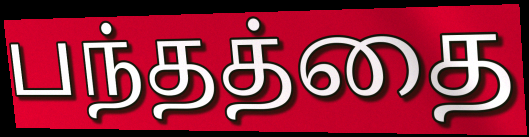
பந்தத்தை